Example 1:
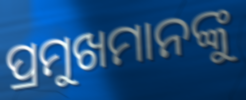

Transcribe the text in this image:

ପ୍ରମୁଖମାନଙ୍କୁ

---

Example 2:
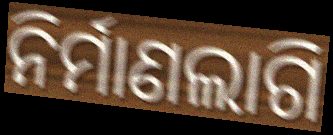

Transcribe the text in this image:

ନିର୍ମାଣଲାଗି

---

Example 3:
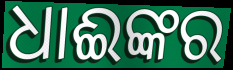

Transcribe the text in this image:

ଧାଈଙ୍କର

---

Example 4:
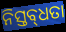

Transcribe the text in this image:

ନିସ୍ତବ୍‌ଧତା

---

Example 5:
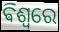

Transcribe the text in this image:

ଵିଶ୍ଵରେ